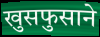
खुसफुसाने